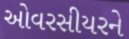
ઓવરસીયરને